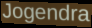
Jogendra